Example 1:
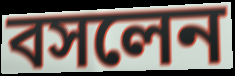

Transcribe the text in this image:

বসলেন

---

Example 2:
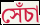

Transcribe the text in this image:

সেঁচা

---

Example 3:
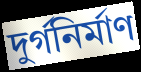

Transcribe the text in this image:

দুর্গনির্মাণ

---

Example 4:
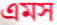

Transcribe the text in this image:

এমস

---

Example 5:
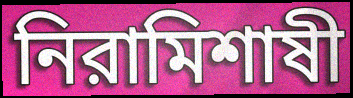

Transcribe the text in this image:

নিরামিশাষী